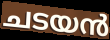
ചടയൻ